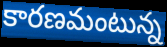
కారణమంటున్న